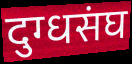
दुग्धसंघ